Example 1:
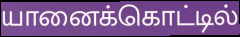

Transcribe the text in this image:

யானைக்கொட்டில்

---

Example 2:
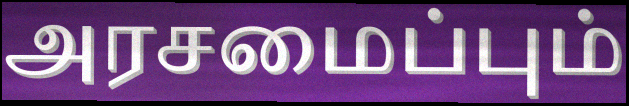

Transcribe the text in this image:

அரசமைப்பும்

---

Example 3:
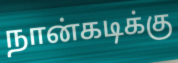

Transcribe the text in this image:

நான்கடிக்கு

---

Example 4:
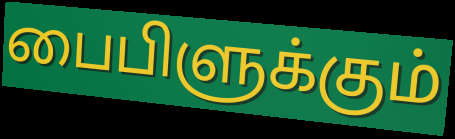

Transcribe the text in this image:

பைபிளுக்கும்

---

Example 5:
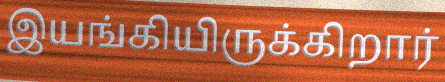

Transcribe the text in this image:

இயங்கியிருக்கிறார்